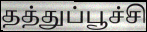
தத்துப்பூச்சி